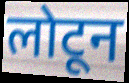
लोटून